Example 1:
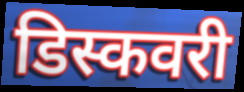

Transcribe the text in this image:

डिस्कवरी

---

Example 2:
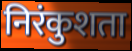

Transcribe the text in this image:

निरंकुशता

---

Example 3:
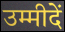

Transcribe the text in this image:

उम्मीदें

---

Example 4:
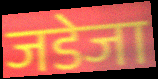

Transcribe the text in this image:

जडेजा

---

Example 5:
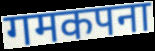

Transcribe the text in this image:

गमकपना